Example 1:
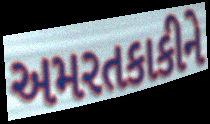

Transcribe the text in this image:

અમરતકાકીને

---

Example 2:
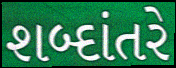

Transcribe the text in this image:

શબ્દાંતરે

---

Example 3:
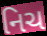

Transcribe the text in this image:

નિચ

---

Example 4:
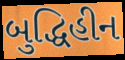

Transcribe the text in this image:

બુદ્ધિહીન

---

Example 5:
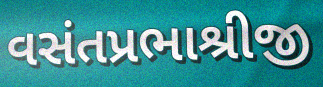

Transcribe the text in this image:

વસંતપ્રભાશ્રીજી